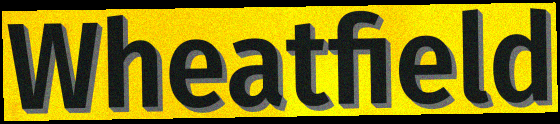
Wheatfield